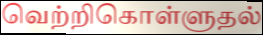
வெற்றிகொள்ளுதல்